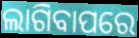
ଲାଗିବାପରେ